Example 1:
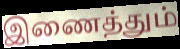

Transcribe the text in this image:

இணைத்தும்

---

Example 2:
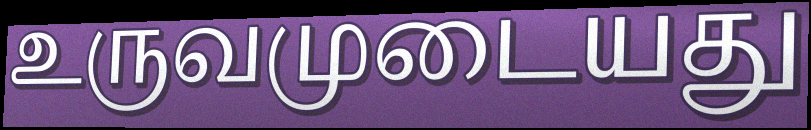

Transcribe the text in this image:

உருவமுடையது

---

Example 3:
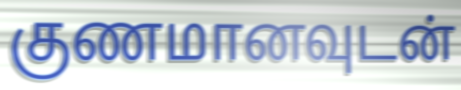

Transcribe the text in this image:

குணமானவுடன்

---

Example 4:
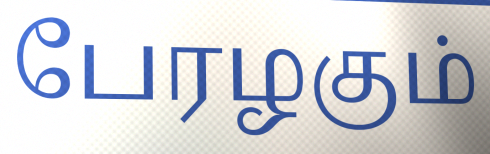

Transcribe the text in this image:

பேரழகும்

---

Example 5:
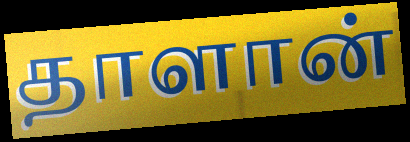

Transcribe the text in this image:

தாளான்